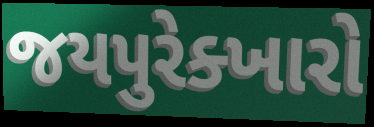
જયપુરેક્ખારો